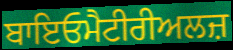
ਬਾਇਓਮੈਟੀਰੀਅਲਜ਼